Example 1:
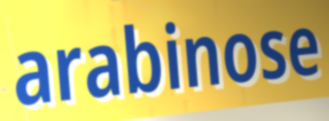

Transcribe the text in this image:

arabinose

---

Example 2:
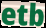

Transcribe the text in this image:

etb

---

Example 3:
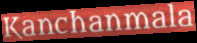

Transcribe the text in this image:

Kanchanmala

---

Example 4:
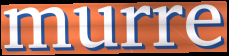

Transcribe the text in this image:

murre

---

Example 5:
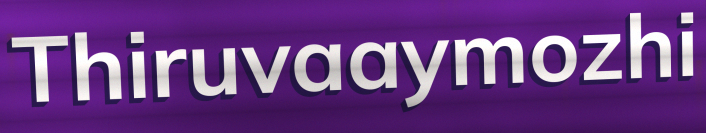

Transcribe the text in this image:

Thiruvaaymozhi